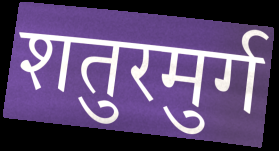
शतुरमुर्ग